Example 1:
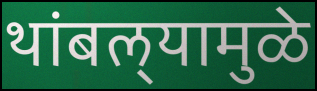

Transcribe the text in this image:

थांबल्यामुळे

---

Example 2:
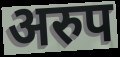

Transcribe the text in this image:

अरुप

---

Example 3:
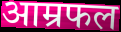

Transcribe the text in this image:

आम्रफल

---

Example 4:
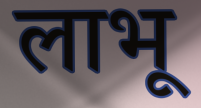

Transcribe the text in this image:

लाभू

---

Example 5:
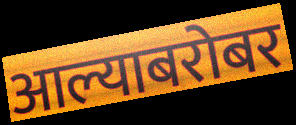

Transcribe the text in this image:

आल्याबरोबर